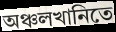
অঞ্চলখানিতে